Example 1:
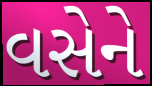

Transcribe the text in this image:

વસેને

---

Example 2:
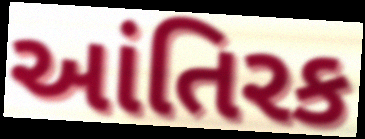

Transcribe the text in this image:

આંતિરક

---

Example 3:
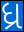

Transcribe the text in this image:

ધ્ર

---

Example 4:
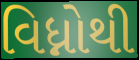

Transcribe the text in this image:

વિધ્નોથી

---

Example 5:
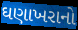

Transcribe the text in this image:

ઘણાખરાનો